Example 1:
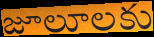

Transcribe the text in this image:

జూలూలకు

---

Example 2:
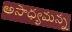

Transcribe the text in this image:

అసాధ్యమన్న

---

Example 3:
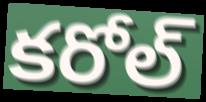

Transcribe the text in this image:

కరోల్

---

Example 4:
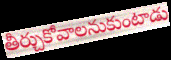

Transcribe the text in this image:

తీర్చుకోవాలనుకుంటాడు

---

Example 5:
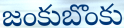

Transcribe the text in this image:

జంకుబొంకు